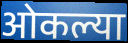
ओकल्या